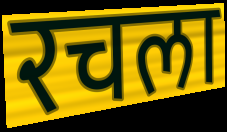
रचला